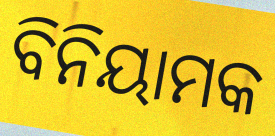
ବିନିୟାମକ